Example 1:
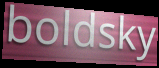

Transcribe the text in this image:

boldsky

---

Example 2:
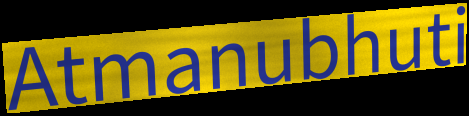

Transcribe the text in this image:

Atmanubhuti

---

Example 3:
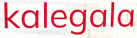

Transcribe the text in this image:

kalegala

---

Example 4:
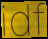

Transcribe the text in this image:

idf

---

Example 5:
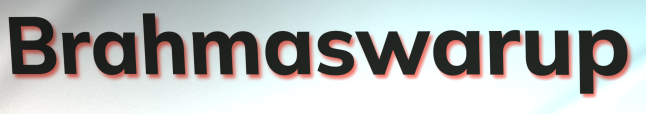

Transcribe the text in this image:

Brahmaswarup